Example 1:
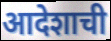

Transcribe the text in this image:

आदेशाची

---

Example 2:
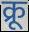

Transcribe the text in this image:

क्रू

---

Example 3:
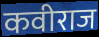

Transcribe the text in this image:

कवीराज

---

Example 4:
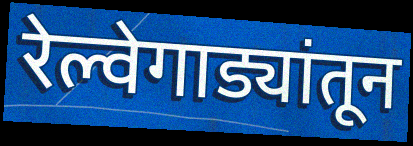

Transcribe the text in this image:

रेल्वेगाड्यांतून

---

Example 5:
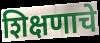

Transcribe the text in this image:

शिक्षणाचे